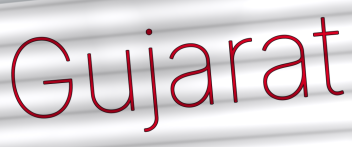
Gujarat